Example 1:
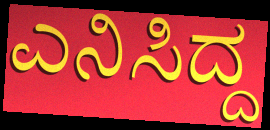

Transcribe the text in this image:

ಎನಿಸಿದ್ದ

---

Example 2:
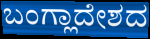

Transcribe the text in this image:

ಬಂಗ್ಲಾದೇಶದ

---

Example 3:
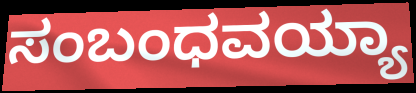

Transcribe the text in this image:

ಸಂಬಂಧವಯ್ಯಾ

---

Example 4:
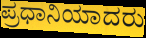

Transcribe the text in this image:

ಪ್ರಧಾನಿಯಾದರು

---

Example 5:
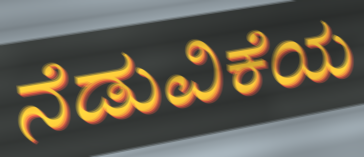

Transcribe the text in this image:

ನೆಡುವಿಕೆಯ